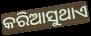
କରିଆସୁଥାଏ